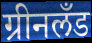
ग्रीनलँड